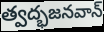
త్వద్భజనవాన్